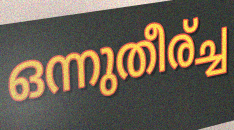
ഒന്നുതീര്ച്ച